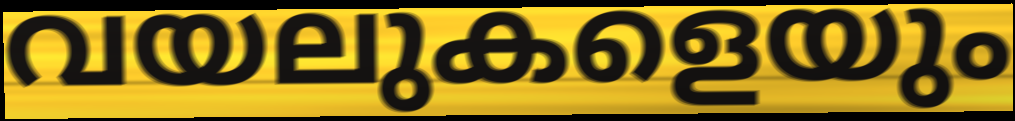
വയലുകളെയും